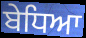
ਬੇਧਿਆ